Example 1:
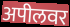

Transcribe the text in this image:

अपीलवर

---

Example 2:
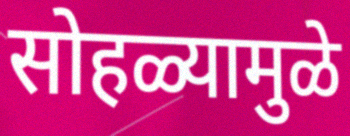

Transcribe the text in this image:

सोहळ्यामुळे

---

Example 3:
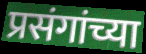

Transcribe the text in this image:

प्रसंगांच्या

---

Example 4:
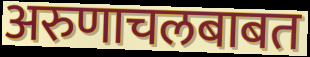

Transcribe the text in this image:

अरुणाचलबाबत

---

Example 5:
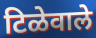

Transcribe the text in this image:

टिळेवाले